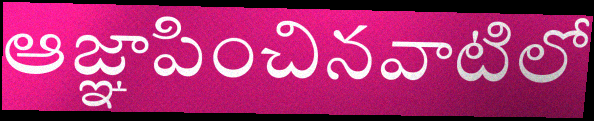
ఆజ్ఞాపించినవాటిలో